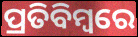
ପ୍ରତିବିମ୍ବରେ